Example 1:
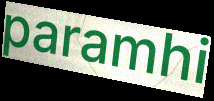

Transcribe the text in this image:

paramhi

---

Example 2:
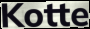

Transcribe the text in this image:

Kotte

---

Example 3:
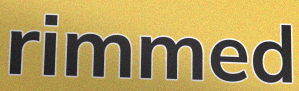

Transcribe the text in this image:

rimmed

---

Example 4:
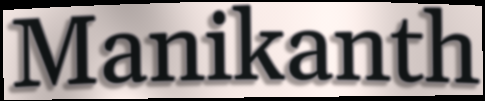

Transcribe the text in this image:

Manikanth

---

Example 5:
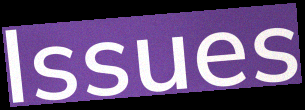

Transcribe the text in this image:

Issues